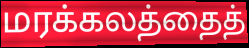
மரக்கலத்தைத்